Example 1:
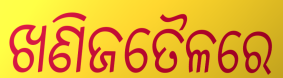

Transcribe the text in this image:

ଖଣିଜତୈଳରେ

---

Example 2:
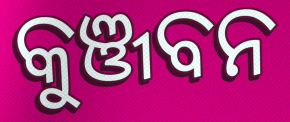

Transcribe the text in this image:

କୁଞ୍ଜବନ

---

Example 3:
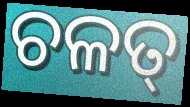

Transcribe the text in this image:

ଚଳତ୍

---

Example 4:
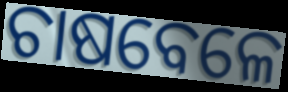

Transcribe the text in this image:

ଚାଷବେଳେ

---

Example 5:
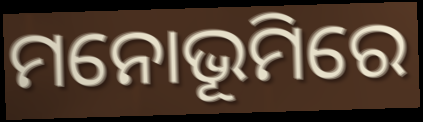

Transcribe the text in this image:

ମନୋଭୂମିରେ